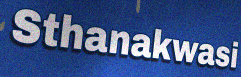
Sthanakwasi